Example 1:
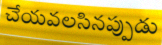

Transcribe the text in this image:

చేయవలసినప్పుడు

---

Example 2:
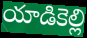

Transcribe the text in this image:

యాడికెల్లి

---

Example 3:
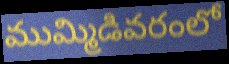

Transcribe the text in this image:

ముమ్మిడివరంలో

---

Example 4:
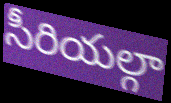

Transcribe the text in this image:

సీరియల్గా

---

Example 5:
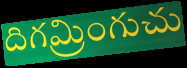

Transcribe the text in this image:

దిగమ్రింగుచు